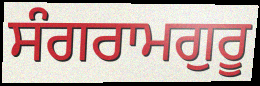
ਸੰਗਰਾਮਗੁਰੂ